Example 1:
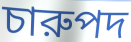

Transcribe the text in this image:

চারুপদ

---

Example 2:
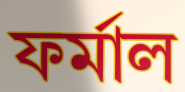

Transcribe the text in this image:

ফর্মাল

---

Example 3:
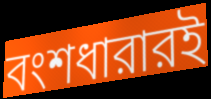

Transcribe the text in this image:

বংশধারারই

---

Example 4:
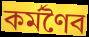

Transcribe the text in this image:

কর্মণৈব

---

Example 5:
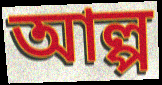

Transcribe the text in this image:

আল্প